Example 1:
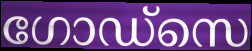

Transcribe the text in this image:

ഗോഡ്സെ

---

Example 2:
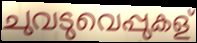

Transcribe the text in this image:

ചുവടുവെപ്പുകള്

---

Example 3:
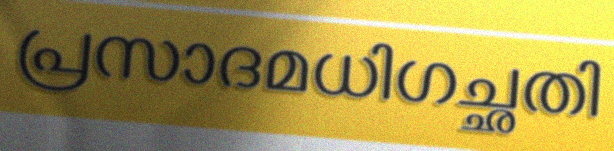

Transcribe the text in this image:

പ്രസാദമധിഗച്ഛതി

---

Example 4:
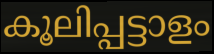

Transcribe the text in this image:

കൂലിപ്പട്ടാളം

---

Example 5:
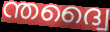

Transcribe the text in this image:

ന്തദ്വൈ